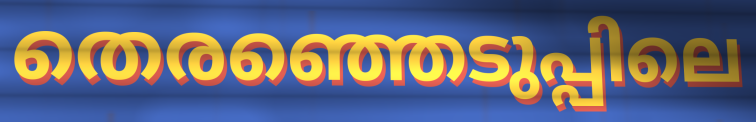
തെരഞ്ഞെടുപ്പിലെ